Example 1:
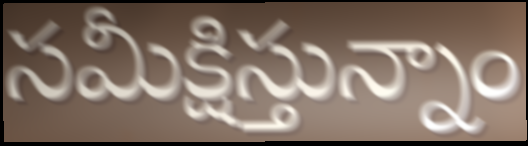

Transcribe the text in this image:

సమీక్షిస్తున్నాం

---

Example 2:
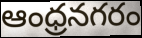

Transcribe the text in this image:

ఆంధ్రనగరం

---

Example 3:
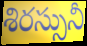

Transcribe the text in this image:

శిరస్సునీ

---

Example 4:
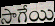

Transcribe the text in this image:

సాగేయి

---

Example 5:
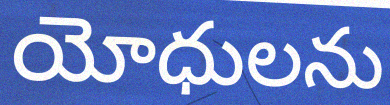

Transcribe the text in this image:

యోధులను